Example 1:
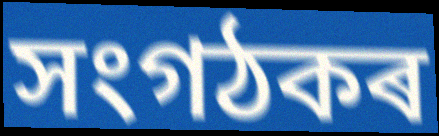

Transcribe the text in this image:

সংগঠকৰ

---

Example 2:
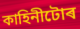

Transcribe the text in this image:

কাহিনীটোৰ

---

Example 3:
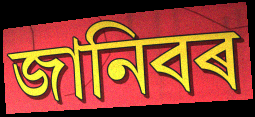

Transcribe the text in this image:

জানিবৰ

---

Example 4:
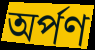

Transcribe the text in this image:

অৰ্পণ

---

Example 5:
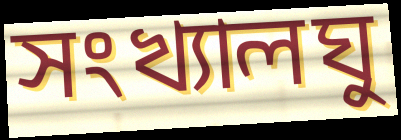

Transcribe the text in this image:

সংখ্যালঘু